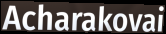
Acharakovai